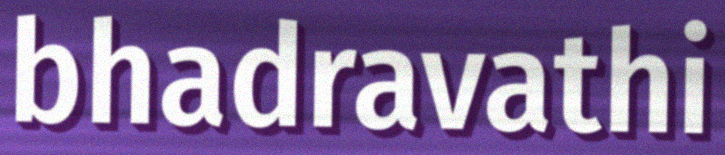
bhadravathi